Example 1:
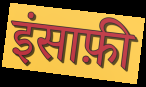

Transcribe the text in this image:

इंसाफ़ी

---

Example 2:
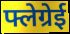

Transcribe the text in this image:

फ्लेग्रेई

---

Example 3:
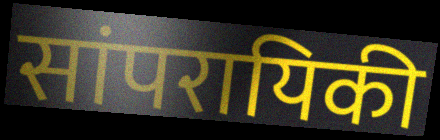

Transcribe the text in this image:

सांपरायिकी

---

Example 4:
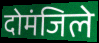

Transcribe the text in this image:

दोमंजिले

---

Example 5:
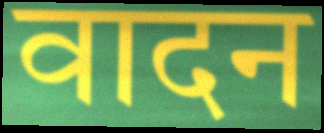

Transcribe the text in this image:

वादन